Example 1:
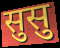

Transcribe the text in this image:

सुसु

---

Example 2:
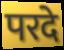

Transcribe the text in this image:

परदे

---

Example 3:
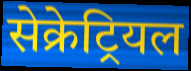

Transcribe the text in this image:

सेक्रेट्रियल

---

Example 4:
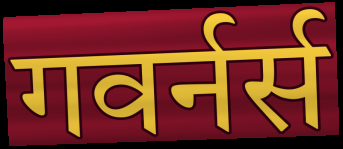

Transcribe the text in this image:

गवर्नर्स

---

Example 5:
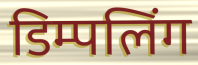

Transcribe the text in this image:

डिम्पलिंग